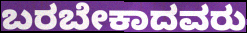
ಬರಬೇಕಾದವರು